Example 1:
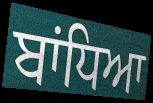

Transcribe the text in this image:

ਬਾਂਧਿਆ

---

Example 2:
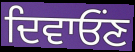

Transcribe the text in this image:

ਦਿਵਾਓੰਣ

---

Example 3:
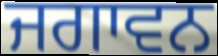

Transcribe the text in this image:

ਜਗਾਵਨ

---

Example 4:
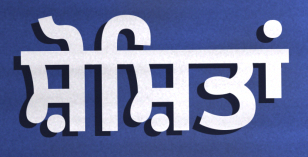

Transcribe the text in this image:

ਸ਼ੋਸ਼ਿਤਾਂ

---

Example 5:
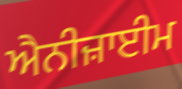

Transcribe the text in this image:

ਐਨੀਜ਼ਾਈਮ